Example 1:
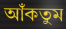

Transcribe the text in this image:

আঁকতুম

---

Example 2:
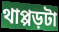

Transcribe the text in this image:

থাপ্পড়টা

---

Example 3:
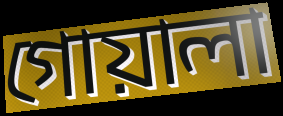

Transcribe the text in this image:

গোয়ালা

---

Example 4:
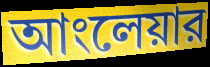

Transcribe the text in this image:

আংলেয়ার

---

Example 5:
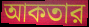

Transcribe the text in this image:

আকতার